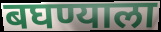
बघण्याला